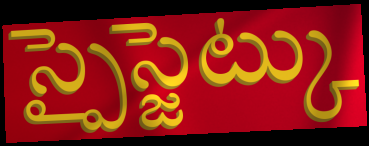
స్పైస్జెట్కు